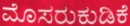
ಮೊಸರುಕುಡಿಕೆ